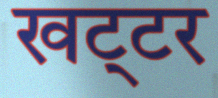
खट्‌टर